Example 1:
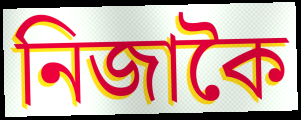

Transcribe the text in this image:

নিজাকৈ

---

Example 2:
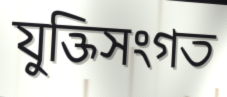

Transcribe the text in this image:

যুক্তিসংগত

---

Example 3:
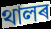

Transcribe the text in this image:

থালৰ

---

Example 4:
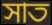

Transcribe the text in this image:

সাত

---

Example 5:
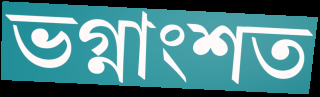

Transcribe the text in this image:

ভগ্নাংশত